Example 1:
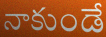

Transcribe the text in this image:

నాకుండే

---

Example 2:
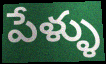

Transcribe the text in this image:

పేళ్ళు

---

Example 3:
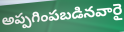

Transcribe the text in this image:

అప్పగింపబడినవారై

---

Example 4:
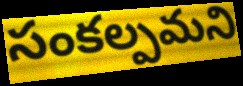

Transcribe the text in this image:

సంకల్పమని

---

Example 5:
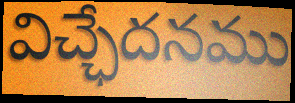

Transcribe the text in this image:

విచ్ఛేదనము